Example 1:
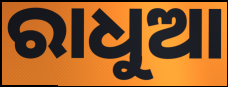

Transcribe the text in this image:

ରାଧୁଆ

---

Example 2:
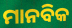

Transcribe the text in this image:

ମାନବିକ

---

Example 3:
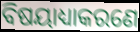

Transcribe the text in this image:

ବିଷୟାଧ୍ୟାକରଣେ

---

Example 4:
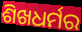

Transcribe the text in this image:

ଶିଖଧର୍ମର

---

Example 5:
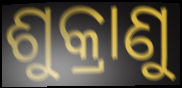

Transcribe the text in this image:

ଶୁକ୍ରାଣୁ